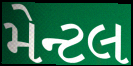
મેન્ટલ